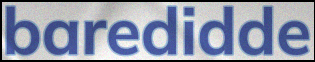
baredidde